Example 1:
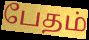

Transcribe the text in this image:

பேதம்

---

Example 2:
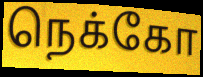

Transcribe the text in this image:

நெக்கோ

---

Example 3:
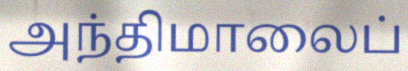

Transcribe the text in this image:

அந்திமாலைப்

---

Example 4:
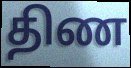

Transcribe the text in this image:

திண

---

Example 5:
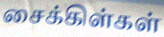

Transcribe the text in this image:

சைக்கிள்கள்